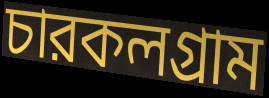
চারকলগ্রাম